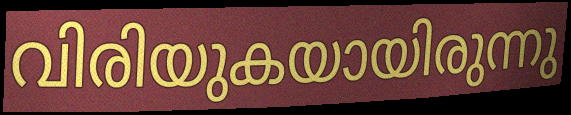
വിരിയുകയായിരുന്നു